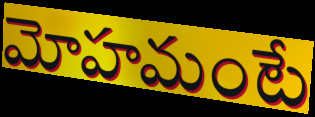
మోహమంటే